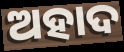
ଅହାଦ